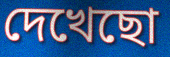
দেখেছো